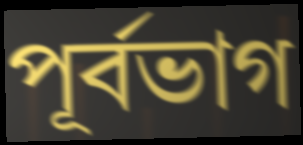
পূর্বভাগ